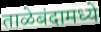
ताळेबंदामध्ये